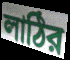
লাঠির